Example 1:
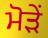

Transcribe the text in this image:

ਮੋੜੇਂ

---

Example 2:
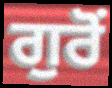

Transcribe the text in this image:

ਗੁਰੋਂ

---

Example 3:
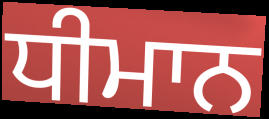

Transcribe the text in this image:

ਧੀਮਾਨ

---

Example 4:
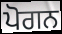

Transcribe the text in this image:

ਪੋਗਨ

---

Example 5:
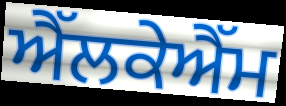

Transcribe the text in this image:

ਐੱਲਕੇਐੱਮ